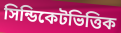
সিন্ডিকেটভিত্তিক